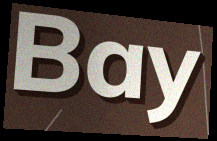
Bay